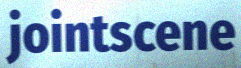
jointscene